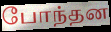
போந்தன